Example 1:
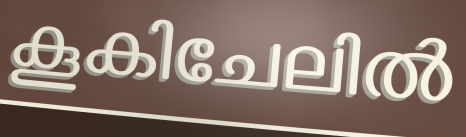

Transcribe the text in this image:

കൂകിചേലിൽ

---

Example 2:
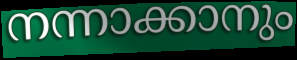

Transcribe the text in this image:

നന്നാക്കാനും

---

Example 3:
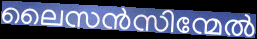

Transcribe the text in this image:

ലൈസൻസിന്മേൽ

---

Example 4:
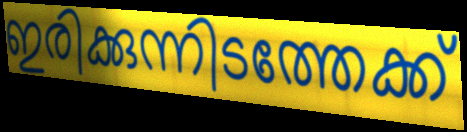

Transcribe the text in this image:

ഇരിക്കുന്നിടത്തേക്ക്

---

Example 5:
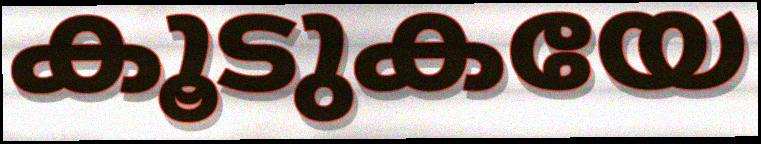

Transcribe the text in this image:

കൂടുകയേ